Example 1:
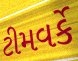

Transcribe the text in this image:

ટીમવર્કે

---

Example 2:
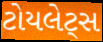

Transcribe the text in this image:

ટોયલેટ્સ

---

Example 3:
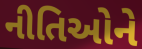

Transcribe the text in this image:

નીતિઓને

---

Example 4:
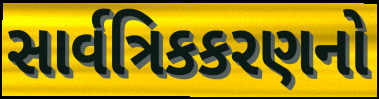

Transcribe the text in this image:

સાર્વત્રિકકરણનો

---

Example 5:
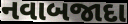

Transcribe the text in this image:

નવાબજાદા